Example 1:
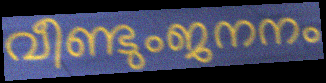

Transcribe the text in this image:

വീണ്ടുംജനനം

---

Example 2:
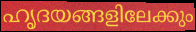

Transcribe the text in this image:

ഹൃദയങ്ങളിലേക്കും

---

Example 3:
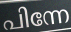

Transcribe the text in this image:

പിന്നേ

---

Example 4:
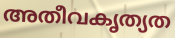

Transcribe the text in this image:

അതീവകൃത്യത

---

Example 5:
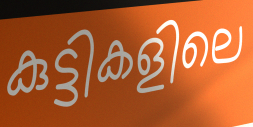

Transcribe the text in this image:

കുട്ടികളിലെ